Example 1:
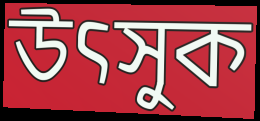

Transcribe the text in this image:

উৎসুক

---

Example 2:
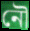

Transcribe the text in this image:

নৌ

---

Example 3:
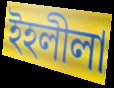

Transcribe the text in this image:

ইহলীলা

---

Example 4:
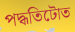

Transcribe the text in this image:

পদ্ধতিটোত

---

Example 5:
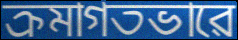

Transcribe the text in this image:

ক্ৰমাগতভাৱে